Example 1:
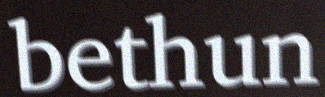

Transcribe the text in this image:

bethun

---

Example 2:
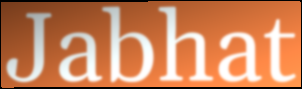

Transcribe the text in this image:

Jabhat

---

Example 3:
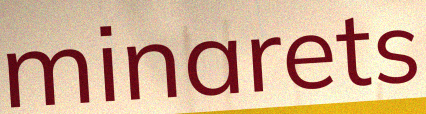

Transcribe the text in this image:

minarets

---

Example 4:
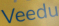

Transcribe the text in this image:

Veedu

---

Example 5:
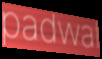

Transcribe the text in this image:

padwal